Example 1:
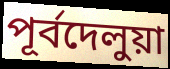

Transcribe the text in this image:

পূর্বদেলুয়া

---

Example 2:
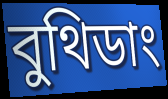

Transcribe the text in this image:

বুথিডাং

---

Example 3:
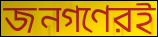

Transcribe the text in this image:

জনগণেরই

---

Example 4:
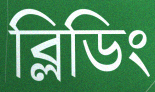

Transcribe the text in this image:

ব্লিডিং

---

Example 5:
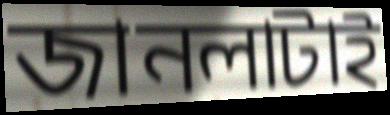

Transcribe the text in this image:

জানলাটাই